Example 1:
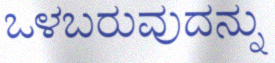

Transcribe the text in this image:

ಒಳಬರುವುದನ್ನು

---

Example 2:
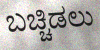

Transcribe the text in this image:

ಬಚ್ಚಿಡಲು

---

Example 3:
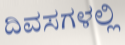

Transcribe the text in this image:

ದಿವಸಗಳಲ್ಲಿ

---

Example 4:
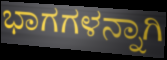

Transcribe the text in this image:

ಭಾಗಗಳನ್ನಾಗಿ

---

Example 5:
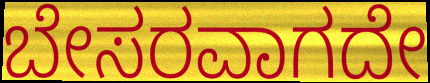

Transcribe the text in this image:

ಬೇಸರವಾಗದೇ